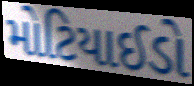
મોટિયાઈડો